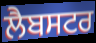
ਲੈਬਸਟਰ